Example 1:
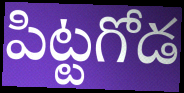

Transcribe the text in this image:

పిట్టగోడ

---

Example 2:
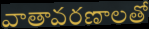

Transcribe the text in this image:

వాతావరణాలతో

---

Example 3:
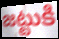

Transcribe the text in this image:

జట్టుకి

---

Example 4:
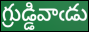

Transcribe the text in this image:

గ్రుడ్డివాఁడు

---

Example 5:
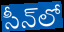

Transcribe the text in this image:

సీన్‌లో